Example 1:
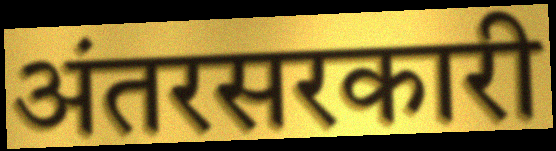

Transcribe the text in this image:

अंतरसरकारी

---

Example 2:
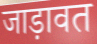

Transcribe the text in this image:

जाड़ावत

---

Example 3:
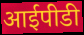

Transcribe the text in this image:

आईपीडी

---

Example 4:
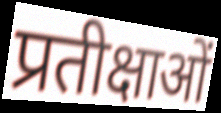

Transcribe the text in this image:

प्रतीक्षाओं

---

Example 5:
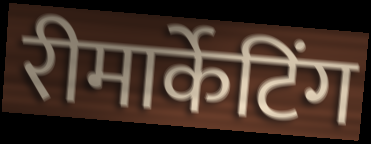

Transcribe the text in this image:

रीमार्केटिंग